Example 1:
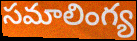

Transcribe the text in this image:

సమాలింగ్య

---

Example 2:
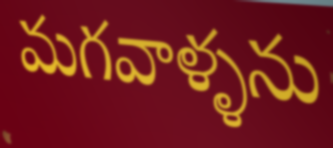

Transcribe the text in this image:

మగవాళ్ళను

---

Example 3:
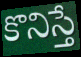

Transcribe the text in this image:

కొనిస్తే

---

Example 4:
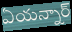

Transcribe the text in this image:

ఏయన్నార్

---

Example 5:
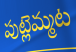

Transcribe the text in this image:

పుట్లెమ్మట